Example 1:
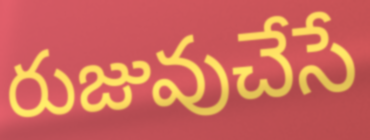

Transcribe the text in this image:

రుజువుచేసే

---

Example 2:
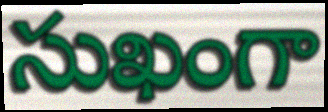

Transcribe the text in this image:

సుఖంగా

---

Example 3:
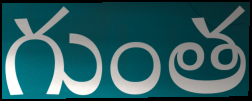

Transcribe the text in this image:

గుంత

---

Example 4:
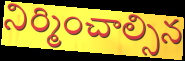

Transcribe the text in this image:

నిర్మించాల్సిన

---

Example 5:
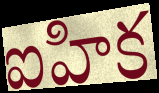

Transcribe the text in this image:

ఐహిక